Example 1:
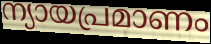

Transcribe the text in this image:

ന്യായപ്രമാണം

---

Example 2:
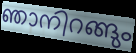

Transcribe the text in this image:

ഞാനിറങ്ങും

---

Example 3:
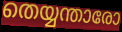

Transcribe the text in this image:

തെയ്യന്താരോ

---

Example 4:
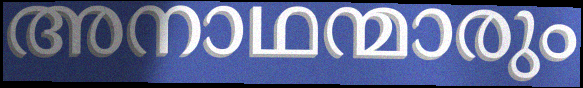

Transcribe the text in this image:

അനാഥന്മാരും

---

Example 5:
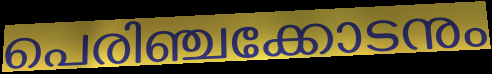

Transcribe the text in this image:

പെരിഞ്ചക്കോടനും